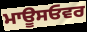
ਮਾਊਸਓਵਰ